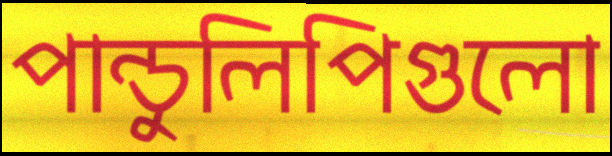
পান্ডুলিপিগুলো